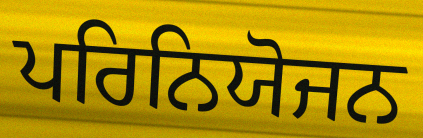
ਪਰਿਨਿਯੋਜਨ